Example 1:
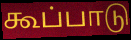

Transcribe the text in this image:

கூப்பாடு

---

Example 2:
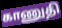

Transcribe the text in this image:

காணுதி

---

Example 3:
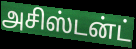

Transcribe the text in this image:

அசிஸ்டன்ட்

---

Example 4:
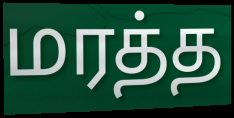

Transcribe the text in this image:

மரத்த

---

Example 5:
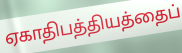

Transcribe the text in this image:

ஏகாதிபத்தியத்தைப்